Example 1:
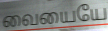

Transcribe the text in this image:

வையையே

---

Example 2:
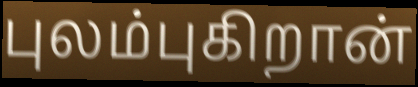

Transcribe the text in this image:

புலம்புகிறான்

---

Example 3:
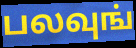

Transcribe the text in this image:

பலவுங்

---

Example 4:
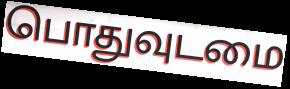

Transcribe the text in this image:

பொதுவுடமை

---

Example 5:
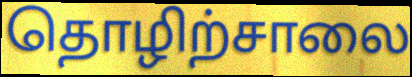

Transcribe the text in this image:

தொழிற்சாலை